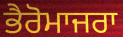
ਭੈਰੋਮਾਜਰਾ